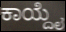
ಕಾಯ್ದೈ